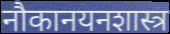
नौकानयनशास्त्र